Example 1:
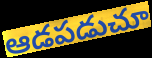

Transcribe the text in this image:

ఆడపడుచూ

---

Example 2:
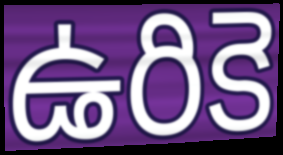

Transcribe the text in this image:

ఉరికె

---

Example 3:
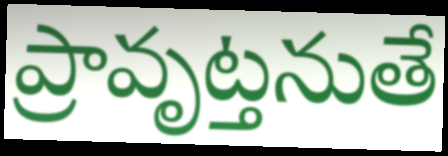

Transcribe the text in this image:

ప్రావృట్తనుతే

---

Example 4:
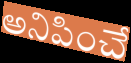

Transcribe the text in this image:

అనిపించే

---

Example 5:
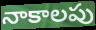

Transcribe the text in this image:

నాకాలపు